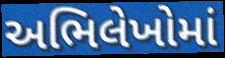
અભિલેખોમાં